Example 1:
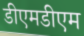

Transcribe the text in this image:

डीएमडीएम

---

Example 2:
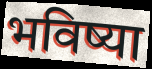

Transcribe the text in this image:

भविष्या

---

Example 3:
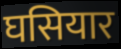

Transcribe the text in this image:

घसियार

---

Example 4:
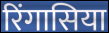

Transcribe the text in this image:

रिंगासिया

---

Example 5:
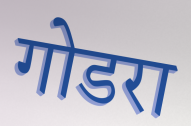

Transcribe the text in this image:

गोडरा